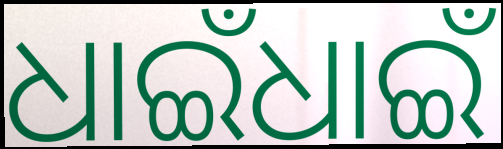
ଧାଇଁଧାଇଁ